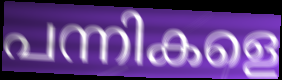
പന്നികളെ